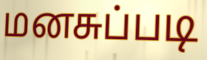
மனசுப்படி